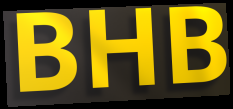
BHB